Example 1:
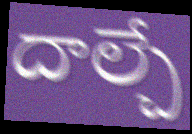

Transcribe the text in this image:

దాల్చే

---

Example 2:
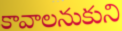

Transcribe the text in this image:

కావాలనుకుని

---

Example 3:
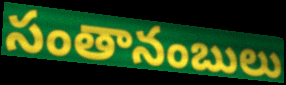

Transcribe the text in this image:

సంతానంబులు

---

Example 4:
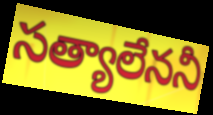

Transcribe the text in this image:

సత్యాలేననీ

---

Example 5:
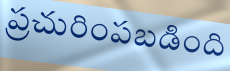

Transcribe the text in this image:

ప్రచురింపబడింది